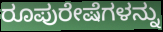
ರೂಪುರೇಷೆಗಳನ್ನು